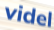
videl